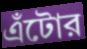
এঁটোর